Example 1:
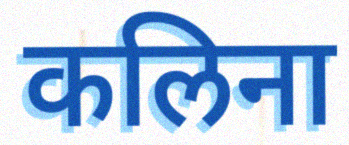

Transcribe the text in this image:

कलिना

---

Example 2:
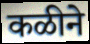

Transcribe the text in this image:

कळीने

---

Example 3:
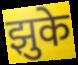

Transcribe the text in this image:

झुके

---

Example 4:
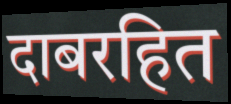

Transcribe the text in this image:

दाबरहित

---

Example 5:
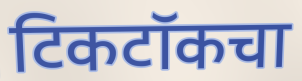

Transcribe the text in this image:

टिकटॉकचा